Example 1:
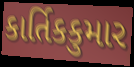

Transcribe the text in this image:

કાર્તિકકુમાર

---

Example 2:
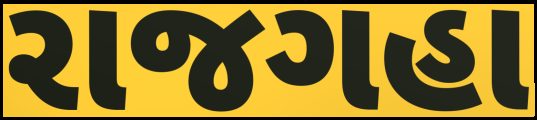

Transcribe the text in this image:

રાજગહા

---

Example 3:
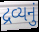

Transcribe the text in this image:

દ્રવ્યનું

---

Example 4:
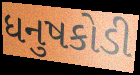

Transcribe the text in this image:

ધનુષકોડી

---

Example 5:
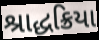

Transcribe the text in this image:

શ્રાદ્ધક્રિયા